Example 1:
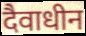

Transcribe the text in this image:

दैवाधीन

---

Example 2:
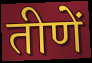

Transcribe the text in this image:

तीणें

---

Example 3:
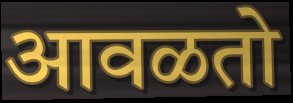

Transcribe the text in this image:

आवळतो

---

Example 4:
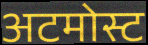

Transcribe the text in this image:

अटमोस्ट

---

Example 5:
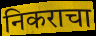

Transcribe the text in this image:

निकराचा